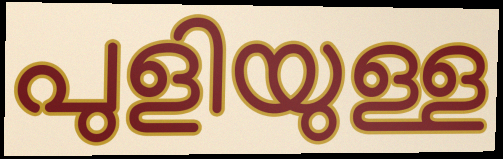
പുളിയുള്ള